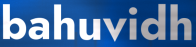
bahuvidh